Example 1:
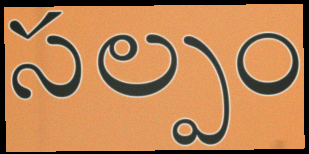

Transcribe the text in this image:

సల్పం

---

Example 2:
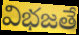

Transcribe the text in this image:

విభజతే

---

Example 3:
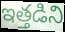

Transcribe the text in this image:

ఇత్తడిని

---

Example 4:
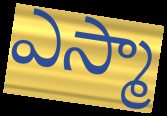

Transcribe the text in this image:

ఎస్మా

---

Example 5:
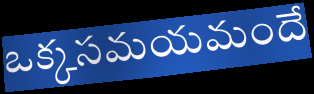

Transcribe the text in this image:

ఒక్కసమయమందే